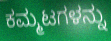
ಕಮ್ಮಟಗಳನ್ನು